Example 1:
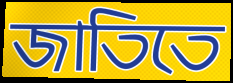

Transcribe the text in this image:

জাতিতে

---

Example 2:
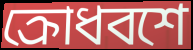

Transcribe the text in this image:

ক্রোধবশে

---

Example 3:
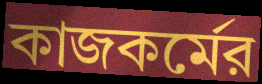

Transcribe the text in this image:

কাজকর্মের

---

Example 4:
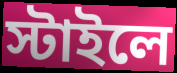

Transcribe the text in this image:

স্টাইলে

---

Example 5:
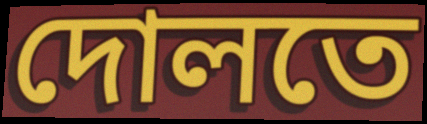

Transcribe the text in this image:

দোলতে